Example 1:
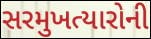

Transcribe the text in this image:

સરમુખત્યારોની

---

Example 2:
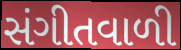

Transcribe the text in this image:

સંગીતવાળી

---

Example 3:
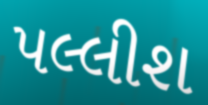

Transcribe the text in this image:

પલ્લીશ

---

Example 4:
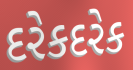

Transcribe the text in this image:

દરેકદરેક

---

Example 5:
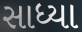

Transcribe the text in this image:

સાધ્યા